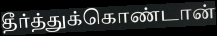
தீர்த்துக்கொண்டான்